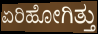
ಏರಿಹೋಗಿತ್ತು